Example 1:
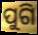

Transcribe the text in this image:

ପୁଗି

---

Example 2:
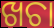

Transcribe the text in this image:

ଖଚା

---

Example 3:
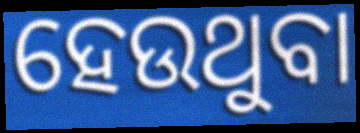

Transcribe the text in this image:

ହେଉଥୁବା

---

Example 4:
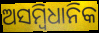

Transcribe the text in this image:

ଅସମ୍ବିଧାନିକ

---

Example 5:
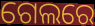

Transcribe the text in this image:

ଗେଲରେ